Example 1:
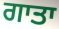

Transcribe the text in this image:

ਗਾਤਾ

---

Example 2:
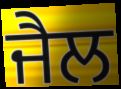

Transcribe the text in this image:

ਜੈਲ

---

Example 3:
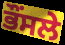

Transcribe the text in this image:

ਭੌਂਸਲੇ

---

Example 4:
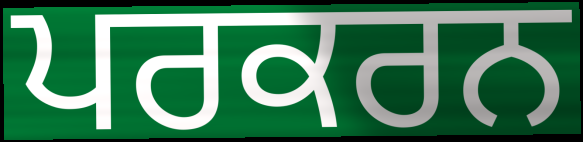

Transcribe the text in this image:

ਪਰਕਰਨ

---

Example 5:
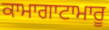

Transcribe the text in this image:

ਕਾਮਾਗਾਟਾਮਾਰੂ